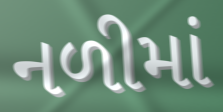
નળીમાં